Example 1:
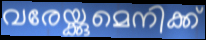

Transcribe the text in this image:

വരേയ്ക്കുമെനിക്ക്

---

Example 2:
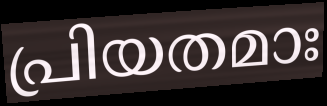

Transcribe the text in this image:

പ്രിയതമാഃ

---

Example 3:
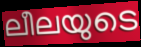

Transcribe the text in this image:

ലീലയുടെ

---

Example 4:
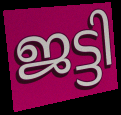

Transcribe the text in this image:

ജട്ടി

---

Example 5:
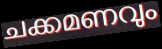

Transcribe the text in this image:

ചക്കമണവും